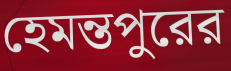
হেমন্তপুরের